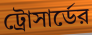
ট্রোসার্ডের